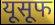
यूसूफ